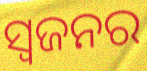
ସ୍ୱଜନର